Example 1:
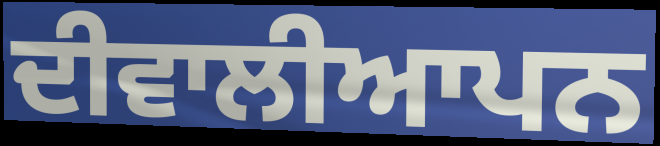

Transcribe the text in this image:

ਦੀਵਾਲੀਆਪਨ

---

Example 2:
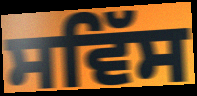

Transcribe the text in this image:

ਸਵਿੱਸ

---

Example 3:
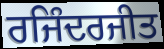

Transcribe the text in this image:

ਰਜਿੰਦਰਜੀਤ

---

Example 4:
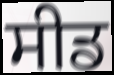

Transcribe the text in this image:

ਸੀਡ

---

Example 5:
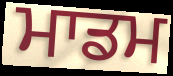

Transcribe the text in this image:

ਮਾਡਮ